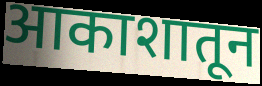
आकाशातून